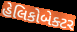
હેલિકોબેક્ટર